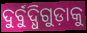
ଦୁର୍ବୁଦ୍ଧିଗୁଡ଼ାକୁ